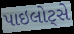
પાઇલોટ્સે